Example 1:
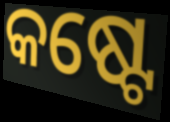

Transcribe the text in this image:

କଷ୍ଟେ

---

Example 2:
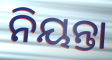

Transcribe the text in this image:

ନିୟନ୍ତା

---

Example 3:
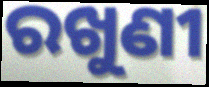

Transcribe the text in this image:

ରଖୁଣୀ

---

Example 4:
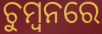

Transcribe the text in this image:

ଚୁମ୍ୱନରେ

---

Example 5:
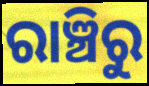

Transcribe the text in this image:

ରାଞ୍ଚିରୁ